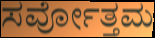
ಸರ್ವೋತ್ತಮ